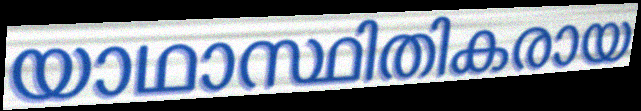
യാഥാസ്ഥിതികരായ